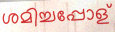
ശമിച്ചപ്പോള്